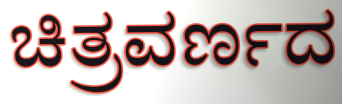
ಚಿತ್ರವರ್ಣದ